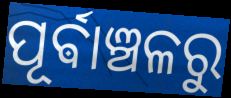
ପୂର୍ଵାଞ୍ଚଳରୁ